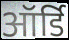
ऑर्डि